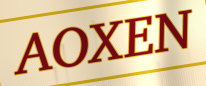
AOXEN